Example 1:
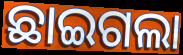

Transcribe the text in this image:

ଛାଇଗଲା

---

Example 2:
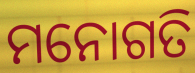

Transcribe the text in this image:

ମନୋଗତି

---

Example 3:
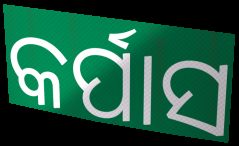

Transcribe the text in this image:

କର୍ପାସ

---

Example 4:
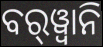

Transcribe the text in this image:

ବର୍‍ୱ୍ୱାନି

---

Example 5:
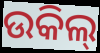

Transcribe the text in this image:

ଉକିଲ୍